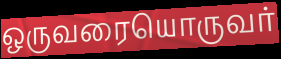
ஒருவரையொருவர்